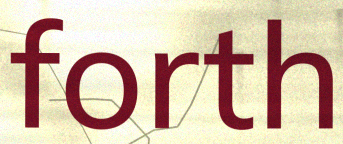
forth